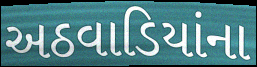
અઠવાડિયાંના